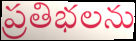
ప్రతిభలను